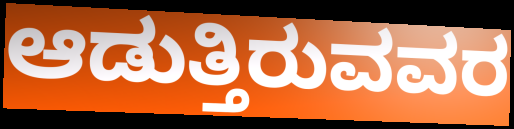
ಆಡುತ್ತಿರುವವರ